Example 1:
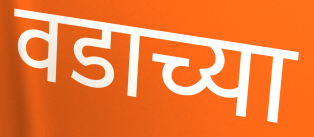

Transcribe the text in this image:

वडाच्या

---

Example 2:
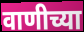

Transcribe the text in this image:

वाणीच्या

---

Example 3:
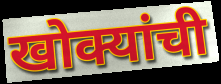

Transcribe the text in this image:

खोक्यांची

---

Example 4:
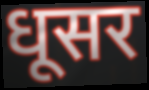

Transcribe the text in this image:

धूसर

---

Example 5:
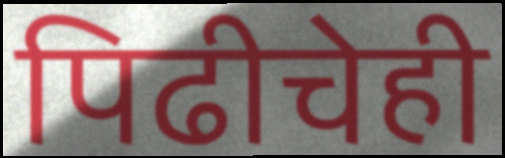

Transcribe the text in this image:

पिढीचेही